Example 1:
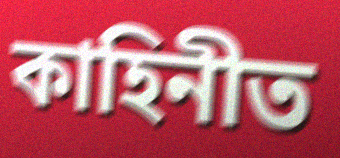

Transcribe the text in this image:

কাহিনীত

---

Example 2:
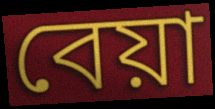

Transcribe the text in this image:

বেয়া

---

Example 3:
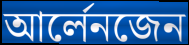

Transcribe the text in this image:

আৰ্লেনজেন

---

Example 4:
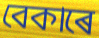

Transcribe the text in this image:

বেকাৰে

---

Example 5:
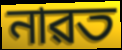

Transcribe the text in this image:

নাৱত